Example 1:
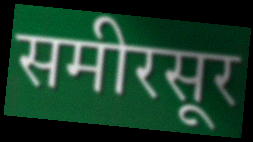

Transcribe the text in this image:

समीरसूर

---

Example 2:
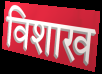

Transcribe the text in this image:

विशाख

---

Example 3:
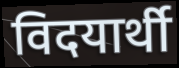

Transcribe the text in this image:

विदयार्थी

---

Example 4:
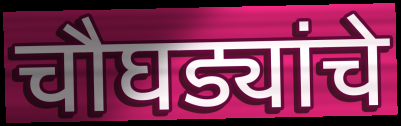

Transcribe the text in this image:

चौघड्यांचे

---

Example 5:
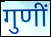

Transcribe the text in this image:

गुणीं